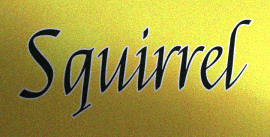
Squirrel